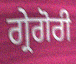
ਗ੍ਰੇਗੋਰੀ